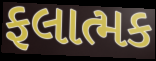
ફલાત્મક